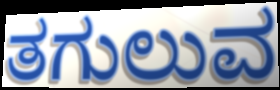
ತಗುಲುವ